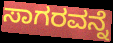
ಸಾಗರವನ್ನೆ